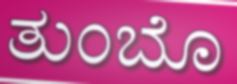
ತುಂಬೊ